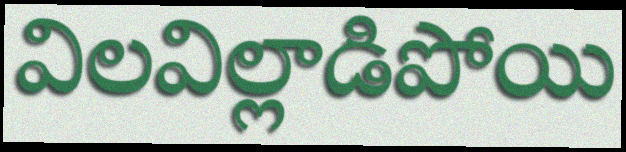
విలవిల్లాడిపోయి